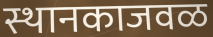
स्थानकाजवळ